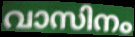
വാസിനം